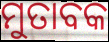
ମୁତାବକ